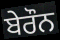
ਬੇਰੌਨ